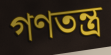
গণতন্ত্র